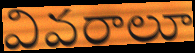
వివరాలూ